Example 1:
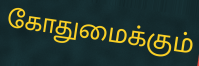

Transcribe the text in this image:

கோதுமைக்கும்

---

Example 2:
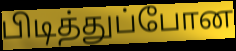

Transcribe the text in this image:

பிடித்துப்போன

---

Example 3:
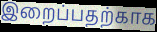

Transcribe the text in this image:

இறைப்பதற்காக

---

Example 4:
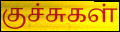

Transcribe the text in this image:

குச்சுகள்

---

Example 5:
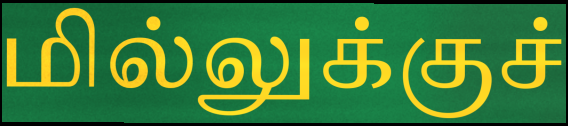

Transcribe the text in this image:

மில்லுக்குச்